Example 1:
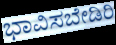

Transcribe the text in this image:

ಭಾವಿಸಬೇಡಿರಿ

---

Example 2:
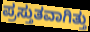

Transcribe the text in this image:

ಪ್ರಸ್ತುತವಾಗಿತ್ತು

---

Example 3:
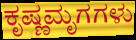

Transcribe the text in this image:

ಕೃಷ್ಣಮೃಗಗಳು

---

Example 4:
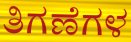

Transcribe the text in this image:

ತಿಗಣೆಗಳ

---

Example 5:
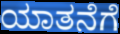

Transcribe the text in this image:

ಯಾತನೆಗೆ